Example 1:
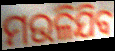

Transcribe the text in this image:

ମଉଳିଯିବ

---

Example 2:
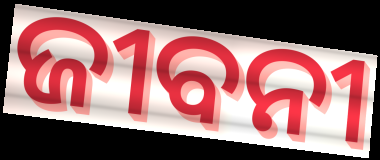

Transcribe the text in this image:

ଜୀବନୀ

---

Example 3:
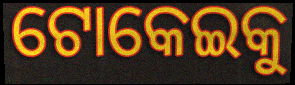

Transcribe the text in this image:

ଟୋକେଇକୁ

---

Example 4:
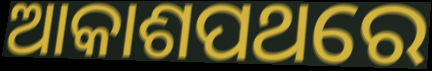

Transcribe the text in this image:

ଆକାଶପଥରେ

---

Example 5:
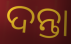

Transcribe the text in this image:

ଦନ୍ତା